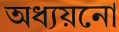
অধ্যয়নো